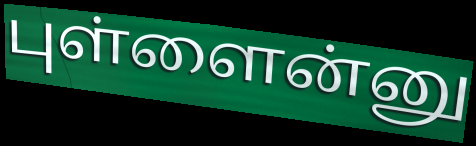
புள்ளைன்னு